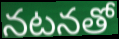
నటనతో